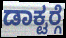
ಡಾಕ್ಟರ್‍ಗೆ